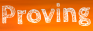
Proving